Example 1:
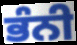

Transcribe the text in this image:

ਭੰਨੀ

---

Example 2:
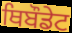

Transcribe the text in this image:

ਥਿਬੌਡੇਟ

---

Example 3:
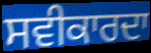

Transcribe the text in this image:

ਸਵੀਕਾਰਦਾ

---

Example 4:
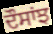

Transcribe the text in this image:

ਦੌਸਾਂਝ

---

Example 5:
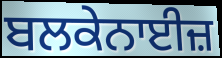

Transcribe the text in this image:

ਬਲਕੇਨਾਈਜ਼